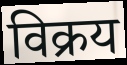
विक्रय